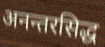
अनन्तरसिद्ध